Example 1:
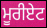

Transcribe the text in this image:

ਮੂਰੀਏਟ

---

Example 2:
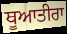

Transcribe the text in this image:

ਥੂਆਤੀਰਾ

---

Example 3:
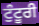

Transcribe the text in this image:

ਟੁੰਟੂਰੀ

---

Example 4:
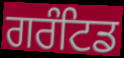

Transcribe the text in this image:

ਗਰੰਟਿਡ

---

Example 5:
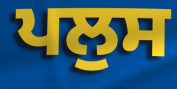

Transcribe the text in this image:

ਪਲੁਸ